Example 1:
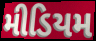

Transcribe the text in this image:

મીડિયમ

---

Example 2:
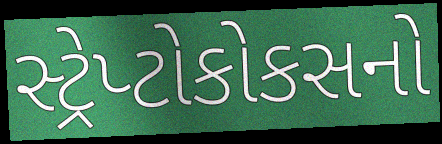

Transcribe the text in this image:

સ્ટ્રેપ્ટોકોકસનો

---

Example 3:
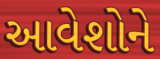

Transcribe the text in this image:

આવેશોને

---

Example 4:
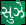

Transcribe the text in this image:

સુઝે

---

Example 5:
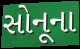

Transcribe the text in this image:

સોનૂના